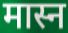
मास्न